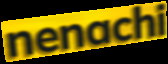
nenachi